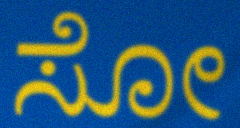
ಸೋ